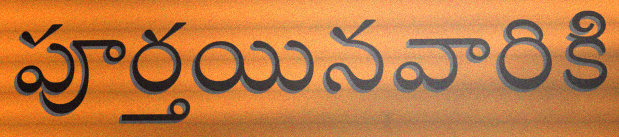
పూర్తయినవారికి